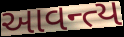
આવન્ત્ય